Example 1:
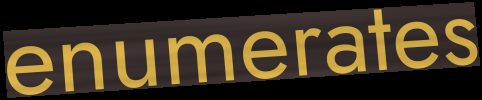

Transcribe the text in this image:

enumerates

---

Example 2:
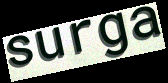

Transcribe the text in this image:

surga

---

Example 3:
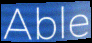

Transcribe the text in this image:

Able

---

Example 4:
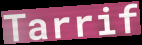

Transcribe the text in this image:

Tarrif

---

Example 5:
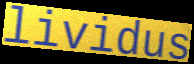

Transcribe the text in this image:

lividus